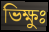
ভিক্ষুঃ